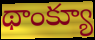
థాంక్యూ